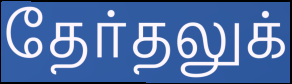
தேர்தலுக்